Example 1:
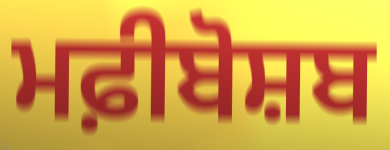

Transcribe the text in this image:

ਮਫ਼ੀਬੋਸ਼ਬ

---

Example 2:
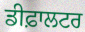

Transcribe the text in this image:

ਡੀਫ਼ਾਲਟਰ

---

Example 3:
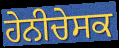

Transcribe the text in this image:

ਹੇਨੀਚੇਸਕ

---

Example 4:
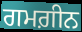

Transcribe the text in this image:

ਗਮਗ਼ੀਨ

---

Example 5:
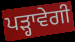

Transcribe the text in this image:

ਪੜ੍ਹਾਵੇਗੀ